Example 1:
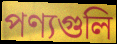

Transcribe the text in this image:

পণ্যগুলি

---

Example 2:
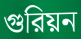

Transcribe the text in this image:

গুরিয়ন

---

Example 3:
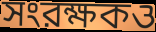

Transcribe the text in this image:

সংরক্ষকও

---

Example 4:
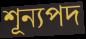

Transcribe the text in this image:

শূন্যপদ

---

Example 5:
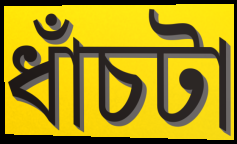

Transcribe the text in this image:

ধাঁচটা